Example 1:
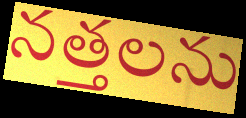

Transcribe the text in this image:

నత్తలను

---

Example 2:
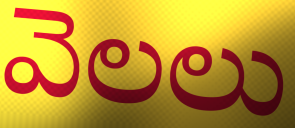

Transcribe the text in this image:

వెలలు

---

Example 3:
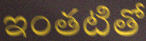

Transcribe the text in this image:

ఇంతటితో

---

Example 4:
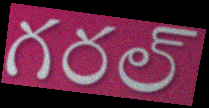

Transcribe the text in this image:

గరల్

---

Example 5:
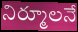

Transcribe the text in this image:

నిర్మూలనే